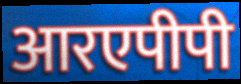
आरएपीपी